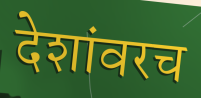
देशांवरच